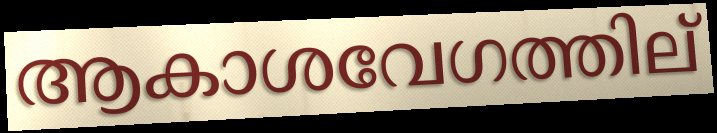
ആകാശവേഗത്തില്